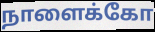
நாளைக்கோ